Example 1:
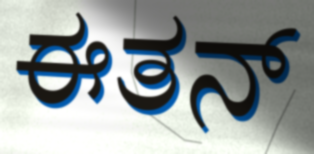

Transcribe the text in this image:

ಈತನ್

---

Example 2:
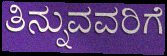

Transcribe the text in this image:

ತಿನ್ನುವವರಿಗೆ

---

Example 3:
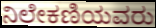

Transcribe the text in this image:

ನಿಲೇಕಣಿಯವರು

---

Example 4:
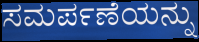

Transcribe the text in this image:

ಸಮರ್ಪಣೆಯನ್ನು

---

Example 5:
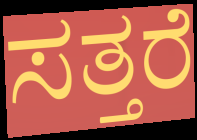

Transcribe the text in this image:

ಸತ್ತರೆ